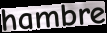
hambre